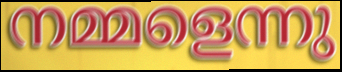
നമ്മളെന്നു